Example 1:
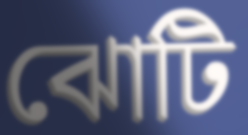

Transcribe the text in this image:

ঝোটি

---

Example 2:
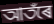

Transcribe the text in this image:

আতঁৰে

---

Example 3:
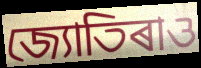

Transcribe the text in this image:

জ্যোতিৰাও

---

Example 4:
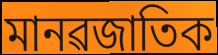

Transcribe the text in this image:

মানৱজাতিক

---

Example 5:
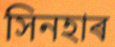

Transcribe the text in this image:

সিনহাৰ